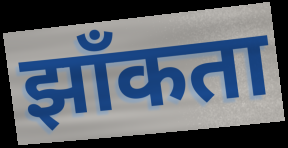
झाँकता